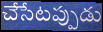
చేసేటప్పుడు